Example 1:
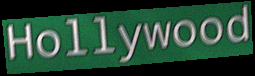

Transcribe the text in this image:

Hollywood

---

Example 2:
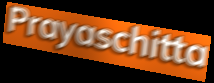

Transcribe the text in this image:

Prayaschitta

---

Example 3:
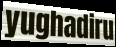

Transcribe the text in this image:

yughadiru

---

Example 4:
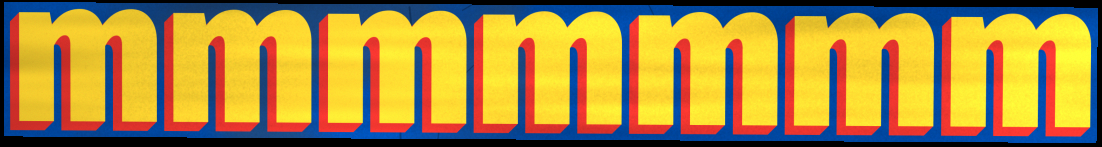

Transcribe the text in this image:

mmmmmmm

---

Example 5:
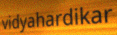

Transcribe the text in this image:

vidyahardikar